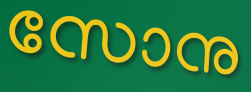
സോനു